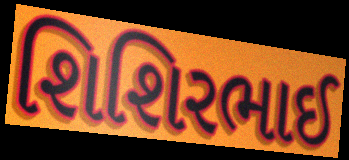
શિશિરભાઈ